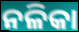
ନଳିକା